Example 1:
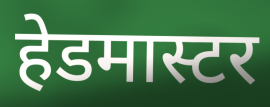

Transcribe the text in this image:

हेडमास्टर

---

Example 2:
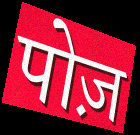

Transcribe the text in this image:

पोज़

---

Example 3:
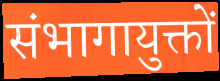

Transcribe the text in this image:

संभागायुक्तों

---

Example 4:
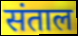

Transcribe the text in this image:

संताल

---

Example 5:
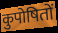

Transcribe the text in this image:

कुपोषितों